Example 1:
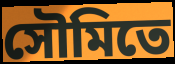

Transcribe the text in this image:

সৌমিতে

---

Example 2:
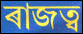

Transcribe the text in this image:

ৰাজত্ব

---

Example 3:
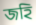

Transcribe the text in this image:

জহি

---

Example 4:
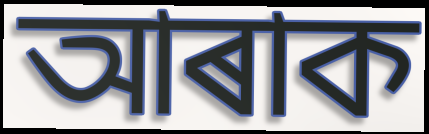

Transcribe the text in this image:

আৰাক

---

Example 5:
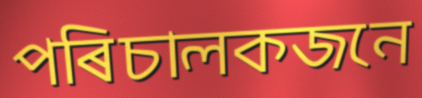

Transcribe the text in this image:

পৰিচালকজনে